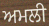
ਅਮਲੀ